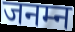
जनम्न